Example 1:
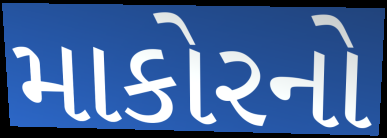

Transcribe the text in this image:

માકોરનો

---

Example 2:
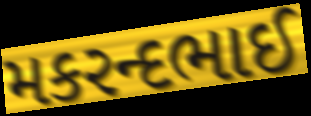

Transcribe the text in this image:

મકરન્દભાઈ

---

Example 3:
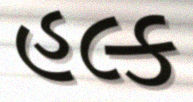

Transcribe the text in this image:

હલ્ક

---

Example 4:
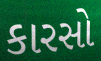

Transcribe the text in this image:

કારસો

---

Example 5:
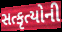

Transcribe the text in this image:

સત્કૃત્યોની